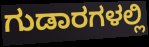
ಗುಡಾರಗಳಲ್ಲಿ